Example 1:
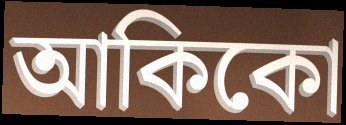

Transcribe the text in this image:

আকিকো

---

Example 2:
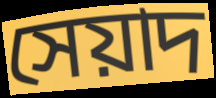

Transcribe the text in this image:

সেয়াদ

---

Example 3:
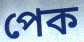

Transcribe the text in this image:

পেক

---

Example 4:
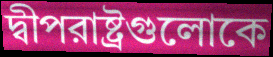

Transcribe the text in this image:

দ্বীপরাষ্ট্রগুলোকে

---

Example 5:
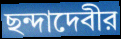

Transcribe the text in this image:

ছন্দাদেবীর